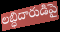
లబ్ధిదారుడిపై